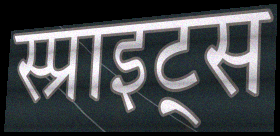
स्प्राइट्स